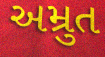
અમ્રુત